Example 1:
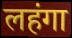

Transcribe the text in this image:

लहंगा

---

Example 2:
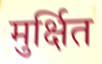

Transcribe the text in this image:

मुर्क्षित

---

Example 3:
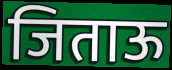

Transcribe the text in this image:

जिताऊ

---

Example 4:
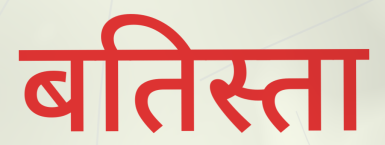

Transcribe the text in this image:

बतिस्ता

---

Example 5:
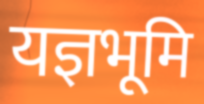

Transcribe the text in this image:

यज्ञभूमि